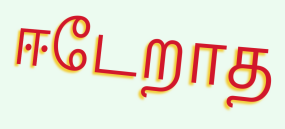
ஈடேறாத